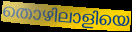
തൊഴിലാളിയെ